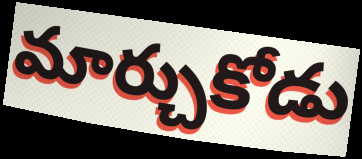
మార్చుకోడు